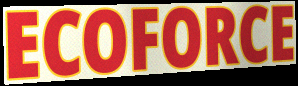
ECOFORCE